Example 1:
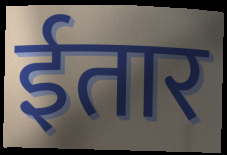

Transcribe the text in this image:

ईतार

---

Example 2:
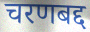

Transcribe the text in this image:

चरणबद्द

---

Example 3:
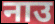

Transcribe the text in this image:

नाउ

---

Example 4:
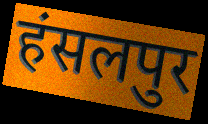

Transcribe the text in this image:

हंसलपुर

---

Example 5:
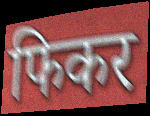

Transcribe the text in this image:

फिकर